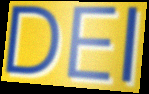
DEI